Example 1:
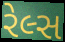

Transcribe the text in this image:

રેલ્સ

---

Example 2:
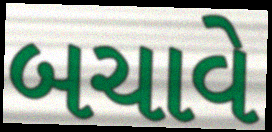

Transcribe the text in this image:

બચાવે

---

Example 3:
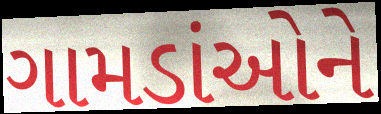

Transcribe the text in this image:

ગામડાંઓને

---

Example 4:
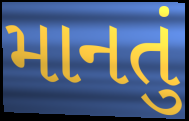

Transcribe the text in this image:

માનતું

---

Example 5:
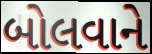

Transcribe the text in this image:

બોલવાને